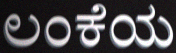
ಲಂಕೆಯ